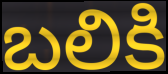
బలికి